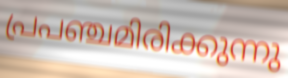
പ്രപഞ്ചമിരിക്കുന്നു